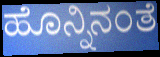
ಹೊನ್ನಿನಂತೆ